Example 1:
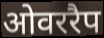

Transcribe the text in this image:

ओवररैप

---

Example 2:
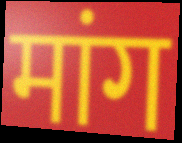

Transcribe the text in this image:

मांग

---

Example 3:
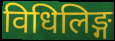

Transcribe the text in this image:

विधिलिङ्ग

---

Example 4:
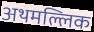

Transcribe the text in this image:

अथमल्लिक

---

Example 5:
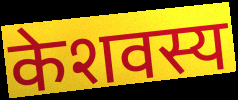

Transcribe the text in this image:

केशवस्य